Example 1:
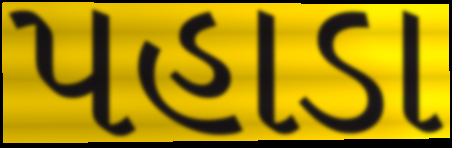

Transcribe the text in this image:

પહાડા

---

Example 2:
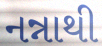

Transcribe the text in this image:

નન્નાથી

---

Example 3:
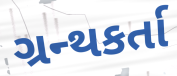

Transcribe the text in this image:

ગ્રન્થકર્તા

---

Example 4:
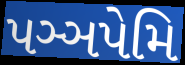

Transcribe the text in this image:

પઞ્ઞપેમિ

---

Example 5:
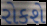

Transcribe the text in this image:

રોકશે